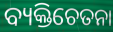
ବ୍ୟକ୍ତିଚେତନା